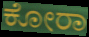
ಕೋರಾ